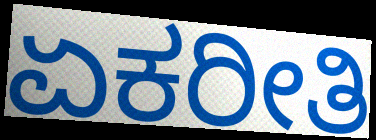
ಏಕರೀತಿ